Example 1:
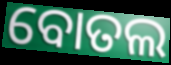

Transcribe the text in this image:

ବୋତଲ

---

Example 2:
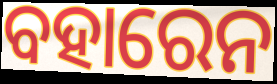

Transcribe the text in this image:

ବହାରେନ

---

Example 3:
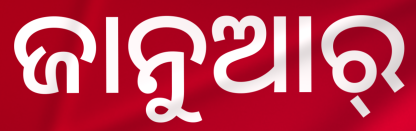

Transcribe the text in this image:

ଜାନୁଆର୍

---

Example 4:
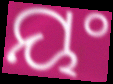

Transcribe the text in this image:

ୟଂ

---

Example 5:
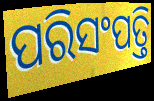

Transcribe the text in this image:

ପରିସଂପତ୍ତି